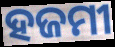
ହଜମୀ